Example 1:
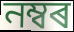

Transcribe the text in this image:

নম্বৰ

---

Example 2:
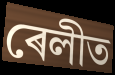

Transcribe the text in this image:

ৰেলীত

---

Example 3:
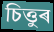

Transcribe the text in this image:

চিত্তুৰ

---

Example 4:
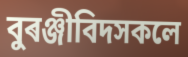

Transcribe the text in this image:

বুৰঞ্জীবিদসকলে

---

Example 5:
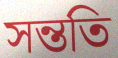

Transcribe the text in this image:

সন্ততি